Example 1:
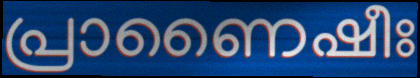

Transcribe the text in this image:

പ്രാണൈഷീഃ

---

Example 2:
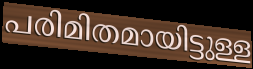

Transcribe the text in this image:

പരിമിതമായിട്ടുള്ള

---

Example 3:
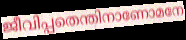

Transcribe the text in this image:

ജീവിപ്പതെന്തിനാണോമനേ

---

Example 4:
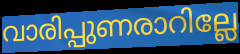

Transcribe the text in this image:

വാരിപ്പുണരാറില്ലേ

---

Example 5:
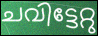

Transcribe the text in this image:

ചവിട്ടേറ്റു